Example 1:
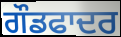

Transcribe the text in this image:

ਗੌਡਫਾਦਰ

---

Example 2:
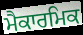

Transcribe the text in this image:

ਮੈਕਾਰਮਿਕ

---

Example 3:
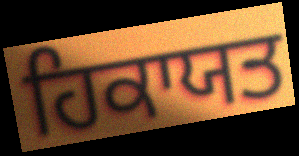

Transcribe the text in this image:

ਹਿਕਾਯਤ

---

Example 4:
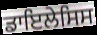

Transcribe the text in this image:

ਡਾਇਲੇਸਿਸ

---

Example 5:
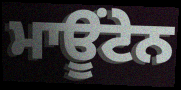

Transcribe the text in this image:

ਮਾਊਂਟੇਨ